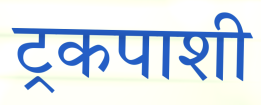
ट्रकपाशी